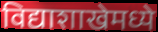
विद्याशाखेमध्ये